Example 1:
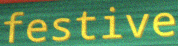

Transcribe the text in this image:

festive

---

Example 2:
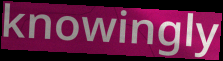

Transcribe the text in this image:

knowingly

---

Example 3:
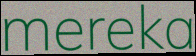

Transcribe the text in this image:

mereka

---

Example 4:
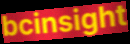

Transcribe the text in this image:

bcinsight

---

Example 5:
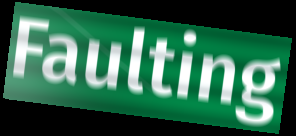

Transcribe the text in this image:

Faulting